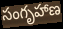
సంగృహాణ